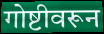
गोष्टीवरून